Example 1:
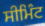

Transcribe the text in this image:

ਸੀਮਿੰਟ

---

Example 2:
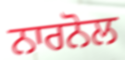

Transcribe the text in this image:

ਨਾਰਨੋਲ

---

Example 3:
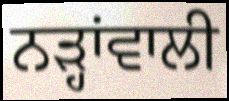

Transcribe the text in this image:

ਨੜ੍ਹਾਂਵਾਲੀ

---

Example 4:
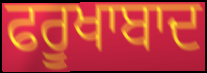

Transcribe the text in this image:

ਫਰੂਖਾਬਾਦ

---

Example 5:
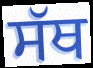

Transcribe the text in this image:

ਸੱਥ